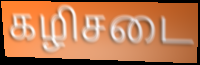
கழிசடை